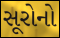
સૂરોનો